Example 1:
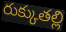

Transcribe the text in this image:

రుక్కుతల్లి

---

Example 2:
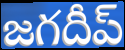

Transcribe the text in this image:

జగదీప్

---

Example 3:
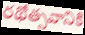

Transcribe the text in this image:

రథోత్సవానికి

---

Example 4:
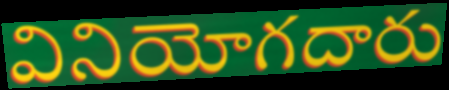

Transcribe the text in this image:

వినియోగదారు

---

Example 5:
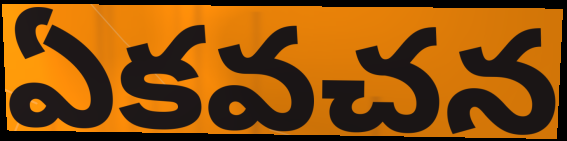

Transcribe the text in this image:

ఏకవచన